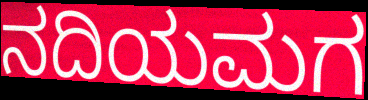
ನದಿಯಮಗ